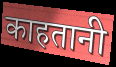
काहतानी